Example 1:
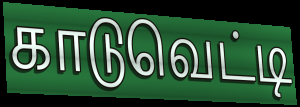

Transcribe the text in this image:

காடுவெட்டி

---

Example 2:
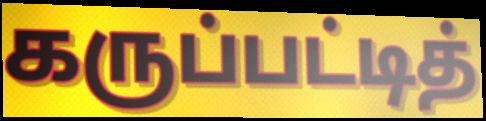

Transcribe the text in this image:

கருப்பட்டித்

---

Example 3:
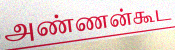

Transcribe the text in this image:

அண்ணன்கூட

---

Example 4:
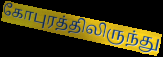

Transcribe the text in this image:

கோபுரத்திலிருந்து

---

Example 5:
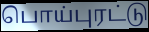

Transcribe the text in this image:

பொய்புரட்டு